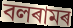
বলৰামৰ